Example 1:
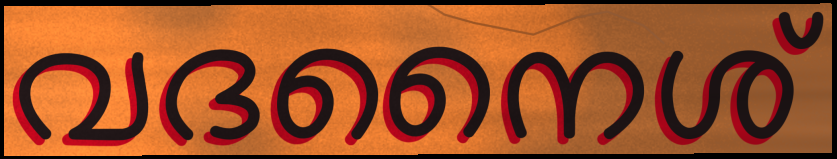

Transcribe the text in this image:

വദനൈശ്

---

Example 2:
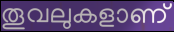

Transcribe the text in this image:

തൂവലുകളാണ്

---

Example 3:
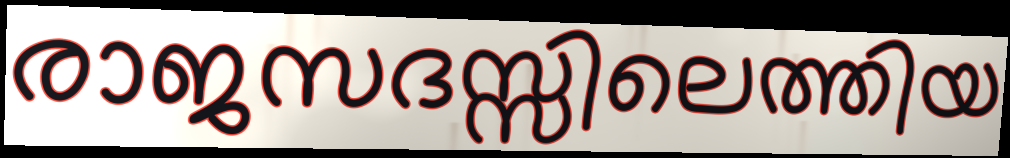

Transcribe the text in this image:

രാജസദസ്സിലെത്തിയ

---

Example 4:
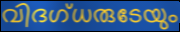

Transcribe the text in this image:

വിദഗ്ധരുടേയും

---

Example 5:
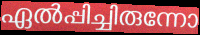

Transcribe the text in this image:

ഏൽപ്പിച്ചിരുന്നോ